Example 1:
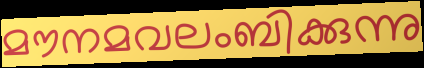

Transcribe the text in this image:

മൗനമവലംബിക്കുന്നു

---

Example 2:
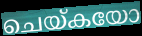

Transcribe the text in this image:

ചെയ്കയോ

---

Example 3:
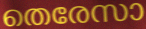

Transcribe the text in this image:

തെരേസാ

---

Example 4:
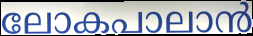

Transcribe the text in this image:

ലോകപാലാൻ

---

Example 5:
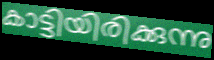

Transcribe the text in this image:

കാട്ടിയിരിക്കുന്നു